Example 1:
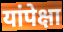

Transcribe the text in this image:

यांपेक्षा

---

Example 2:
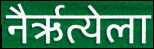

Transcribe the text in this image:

नैर्ऋत्येला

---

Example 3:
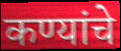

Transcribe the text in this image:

कण्यांचे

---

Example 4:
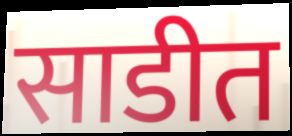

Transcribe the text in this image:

साडीत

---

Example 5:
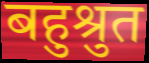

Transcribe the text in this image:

बहुश्रुत